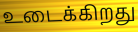
உடைக்கிறது